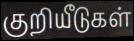
குறியீடுகள்